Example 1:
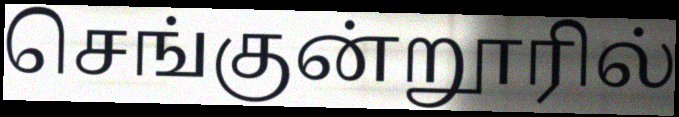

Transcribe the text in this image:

செங்குன்றூரில்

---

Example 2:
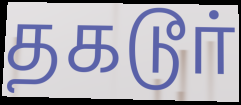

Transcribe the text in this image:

தகடூர்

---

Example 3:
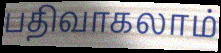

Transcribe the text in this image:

பதிவாகலாம்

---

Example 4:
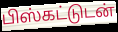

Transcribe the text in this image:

பிஸ்கட்டுடன்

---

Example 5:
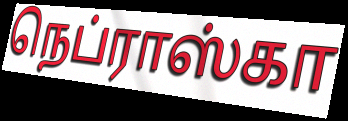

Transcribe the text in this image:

நெப்ராஸ்கா